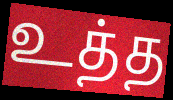
உத்த